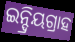
ଇନ୍ଦ୍ରିୟଗ୍ରାହ